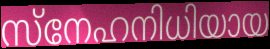
സ്നേഹനിധിയായ